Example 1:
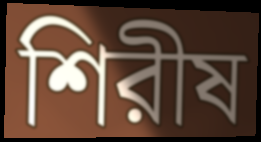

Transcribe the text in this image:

শিরীষ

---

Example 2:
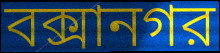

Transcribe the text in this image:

বক্সানগর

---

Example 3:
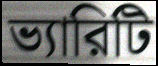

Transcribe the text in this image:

ভ্যারিটি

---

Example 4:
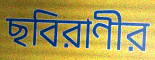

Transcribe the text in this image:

ছবিরাণীর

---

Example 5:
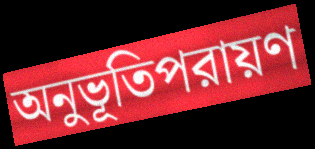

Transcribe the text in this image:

অনুভূতিপরায়ণ